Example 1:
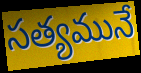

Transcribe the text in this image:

సత్యమునే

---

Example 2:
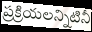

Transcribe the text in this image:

ప్రక్రియలన్నిటినీ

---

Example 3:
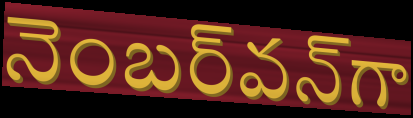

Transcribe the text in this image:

నెంబర్‌వన్‌గా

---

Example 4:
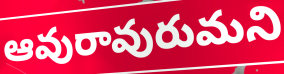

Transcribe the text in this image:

ఆవురావురుమని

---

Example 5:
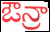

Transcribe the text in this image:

ఔన్రా